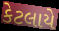
કેટલાયે